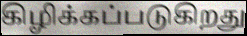
கிழிக்கப்படுகிறது